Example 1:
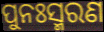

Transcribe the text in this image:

ପୁନଃସ୍ମରଣ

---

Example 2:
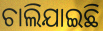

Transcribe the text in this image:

ଚାଲିଯାଇଛି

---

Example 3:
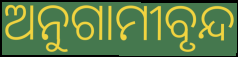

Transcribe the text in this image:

ଅନୁଗାମୀବୃନ୍ଦ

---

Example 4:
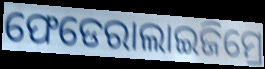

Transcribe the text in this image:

ଫେଡେରାଲାଇଜିମ୍ରେ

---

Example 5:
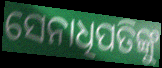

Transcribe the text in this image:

ସେନାଧିପତିଙ୍କୁ